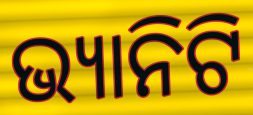
ଭ୍ୟାନିଟି